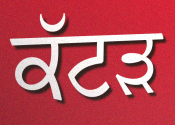
ਕੱਟੜ